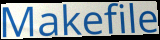
Makefile